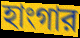
হাংগার